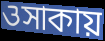
ওসাকায়